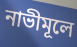
নাভীমূলে